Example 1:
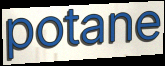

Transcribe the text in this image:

potane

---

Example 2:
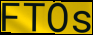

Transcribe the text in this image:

FTOs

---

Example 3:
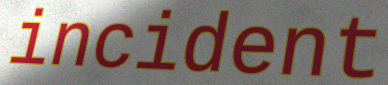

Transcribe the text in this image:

incident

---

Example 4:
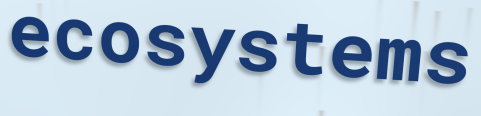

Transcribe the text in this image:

ecosystems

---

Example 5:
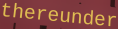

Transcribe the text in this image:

thereunder